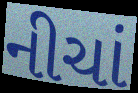
નીચાં